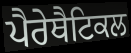
ਪੈਰੇਥੈਟਿਕਲ